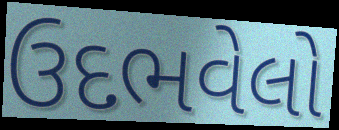
ઉદભવેલો